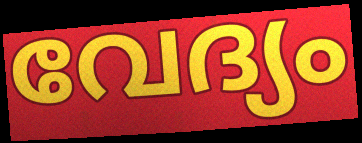
വേദ്യം